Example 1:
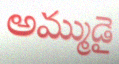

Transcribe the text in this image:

అమ్ముడై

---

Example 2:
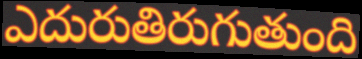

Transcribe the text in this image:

ఎదురుతిరుగుతుంది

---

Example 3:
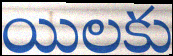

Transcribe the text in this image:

యిలకు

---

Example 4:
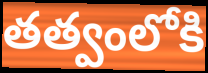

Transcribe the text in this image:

తత్వంలోకి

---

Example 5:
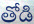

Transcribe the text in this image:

తోడి